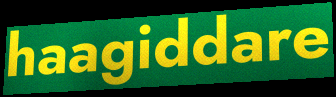
haagiddare